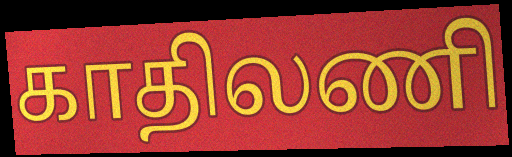
காதிலணி